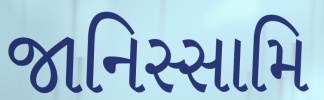
જાનિસ્સામિ